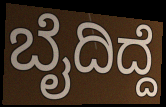
ಬೈದಿದ್ದೆ